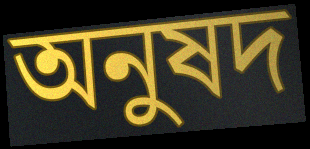
অনুষদ